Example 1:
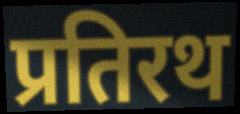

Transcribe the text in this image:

प्रतिरथ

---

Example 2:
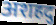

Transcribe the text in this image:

अशहदु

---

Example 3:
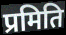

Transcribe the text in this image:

प्रमिति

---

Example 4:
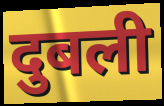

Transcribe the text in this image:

दुबली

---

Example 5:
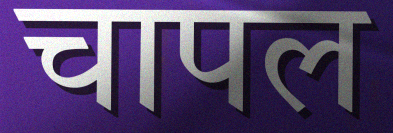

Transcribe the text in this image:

चापल